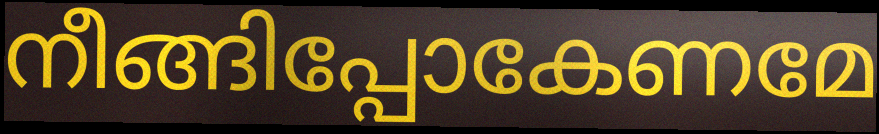
നീങ്ങിപ്പോകേണമേ